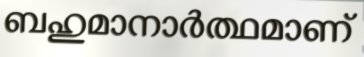
ബഹുമാനാർത്ഥമാണ്